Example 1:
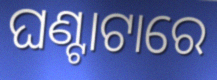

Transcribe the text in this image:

ଘଣ୍ଟାଟାରେ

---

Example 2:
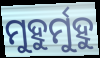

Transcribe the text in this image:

ମୁହୁର୍ମୁହୁ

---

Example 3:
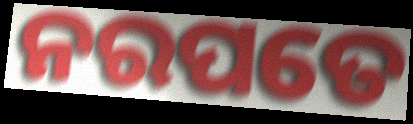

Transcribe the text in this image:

ନରପତେ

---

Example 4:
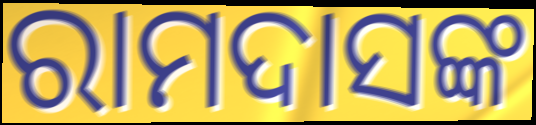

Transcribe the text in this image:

ରାମଦାସଙ୍କ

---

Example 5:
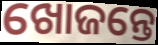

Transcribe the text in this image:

ଖୋଜନ୍ତେ